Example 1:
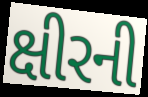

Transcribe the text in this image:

ક્ષીરની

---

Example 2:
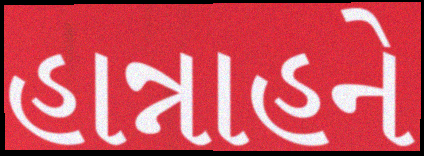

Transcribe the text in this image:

હાન્નાહને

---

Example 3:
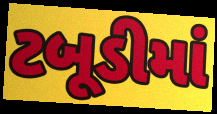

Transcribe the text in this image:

ટબૂડીમાં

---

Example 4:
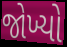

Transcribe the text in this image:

જોખ્યો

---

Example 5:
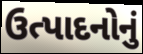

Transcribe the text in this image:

ઉત્પાદનોનું